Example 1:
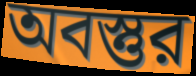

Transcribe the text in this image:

অবস্তুর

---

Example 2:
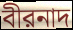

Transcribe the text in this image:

বীরনাদ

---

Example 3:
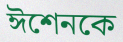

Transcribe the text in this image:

ঈশেনকে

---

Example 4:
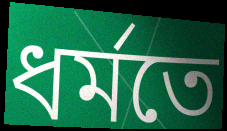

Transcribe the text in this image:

ধর্মতে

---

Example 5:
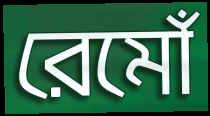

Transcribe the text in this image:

রেমোঁ